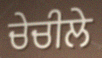
ਚੇਚੀਲੇ